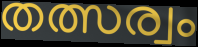
തത്സര്വം